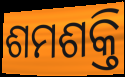
ଶମଶକ୍ତି